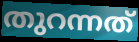
തുറന്നത്